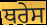
ਥਰੇਸ